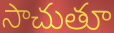
సాచుతూ